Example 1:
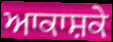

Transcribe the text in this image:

ਆਕਾਸ਼ਕੇ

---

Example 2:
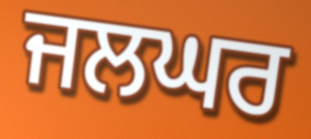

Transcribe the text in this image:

ਜਲਘਰ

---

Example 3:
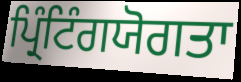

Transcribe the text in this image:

ਪ੍ਰਿੰਟਿੰਗਯੋਗਤਾ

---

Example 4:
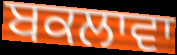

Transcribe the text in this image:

ਬਕਲਾਵਾ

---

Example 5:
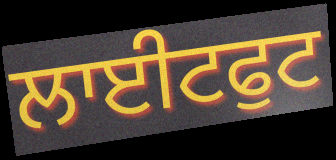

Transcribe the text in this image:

ਲਾਈਟਫੁਟ